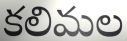
కలిమల